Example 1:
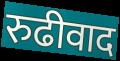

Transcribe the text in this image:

रुढीवाद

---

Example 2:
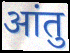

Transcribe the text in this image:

आंतु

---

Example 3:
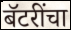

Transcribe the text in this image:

बॅटरींचा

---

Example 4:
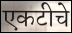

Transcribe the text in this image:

एकटीचे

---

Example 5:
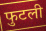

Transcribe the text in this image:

फुटली